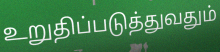
உறுதிப்படுத்துவதும்